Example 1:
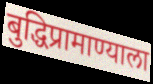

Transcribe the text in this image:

बुद्धिप्रामाण्याला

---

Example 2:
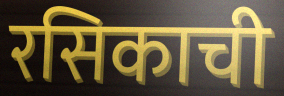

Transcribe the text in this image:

रसिकाची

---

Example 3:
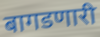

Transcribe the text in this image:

बागडणारी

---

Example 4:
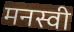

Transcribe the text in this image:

मनस्वी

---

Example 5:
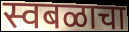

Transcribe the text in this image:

स्वबळाचा